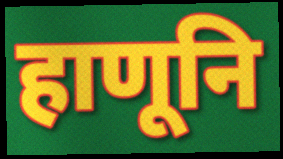
हाणूनि